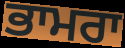
ਭਾਮਰਾ